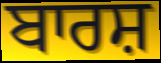
ਬਾਰਸ਼